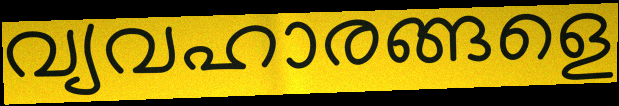
വ്യവഹാരങ്ങളെ